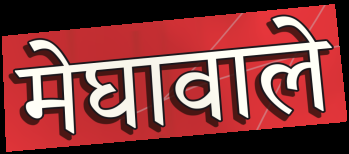
मेघावाले